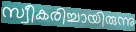
സ്വീകരിച്ചായിരുന്നു